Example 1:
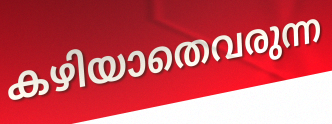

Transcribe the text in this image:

കഴിയാതെവരുന്ന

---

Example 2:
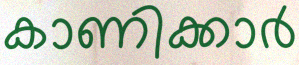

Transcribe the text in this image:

കാണിക്കാർ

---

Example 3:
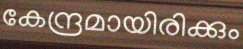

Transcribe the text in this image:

കേന്ദ്രമായിരിക്കും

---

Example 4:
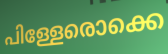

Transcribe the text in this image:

പിള്ളേരൊക്കെ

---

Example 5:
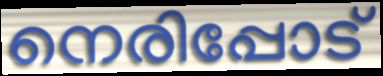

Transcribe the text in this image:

നെരിപ്പോട്